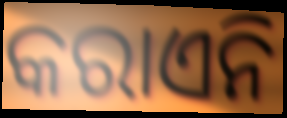
କରାଏନି